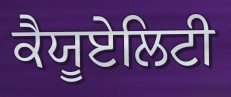
ਕੈਯੂਏਲਿਟੀ